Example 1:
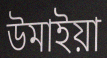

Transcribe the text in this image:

উমাইয়া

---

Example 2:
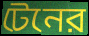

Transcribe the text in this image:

টেনের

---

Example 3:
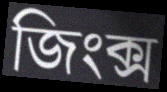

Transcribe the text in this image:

জিংক্স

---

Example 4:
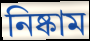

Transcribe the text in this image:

নিষ্কাম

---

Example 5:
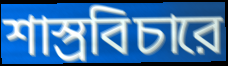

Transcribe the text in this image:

শাস্ত্রবিচারে